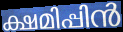
ക്ഷമിപ്പിൻ